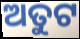
ଅତୁଟ